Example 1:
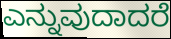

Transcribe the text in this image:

ಎನ್ನುವುದಾದರೆ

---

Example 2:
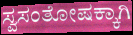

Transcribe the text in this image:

ಸ್ವಸಂತೋಷಕ್ಕಾಗಿ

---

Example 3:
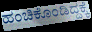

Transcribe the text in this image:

ಹಂಚಿಕೊಂಡಿದ್ದಕ್ಕೆ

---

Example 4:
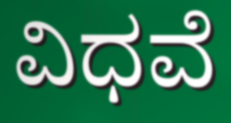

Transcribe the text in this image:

ವಿಧವೆ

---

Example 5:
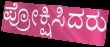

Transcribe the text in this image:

ಪ್ರೋಕ್ಷಿಸಿದರು